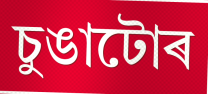
চুঙাটোৰ